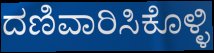
ದಣಿವಾರಿಸಿಕೊಳ್ಳಿ